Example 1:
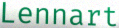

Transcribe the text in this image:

Lennart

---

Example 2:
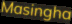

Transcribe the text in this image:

Masingha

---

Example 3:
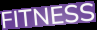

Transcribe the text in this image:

FITNESS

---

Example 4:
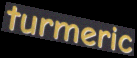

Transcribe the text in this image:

turmeric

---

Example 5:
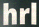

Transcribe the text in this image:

hrl